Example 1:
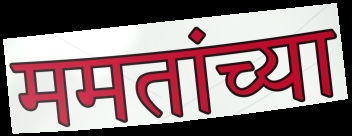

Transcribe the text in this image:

ममतांच्या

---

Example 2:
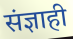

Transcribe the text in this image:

संज्ञाही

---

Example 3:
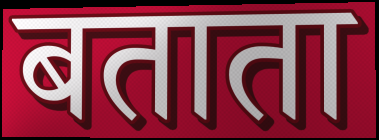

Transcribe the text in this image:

बताता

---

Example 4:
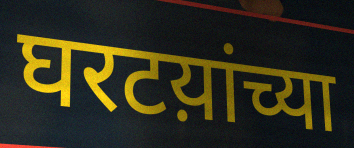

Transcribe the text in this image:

घरटय़ांच्या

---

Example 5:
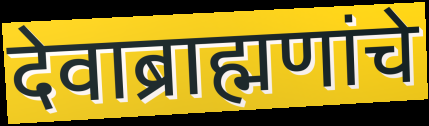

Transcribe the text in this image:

देवाब्राह्मणांचे